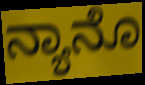
ನ್ಯಾನೊ